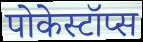
पोकेस्टॉप्स